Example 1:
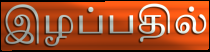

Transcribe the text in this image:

இழப்பதில்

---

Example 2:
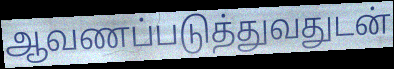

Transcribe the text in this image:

ஆவணப்படுத்துவதுடன்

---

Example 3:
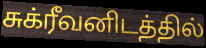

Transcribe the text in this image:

சுக்ரீவனிடத்தில்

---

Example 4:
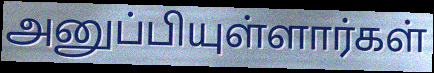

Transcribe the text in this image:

அனுப்பியுள்ளார்கள்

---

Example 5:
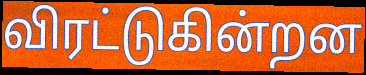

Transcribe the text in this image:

விரட்டுகின்றன